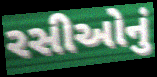
રસીઓનું